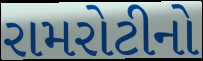
રામરોટીનો